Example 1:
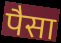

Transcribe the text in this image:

पैसा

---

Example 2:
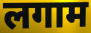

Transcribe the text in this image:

लगाम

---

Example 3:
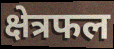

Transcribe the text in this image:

क्षेत्रफल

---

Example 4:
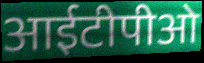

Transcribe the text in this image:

आईटीपीओ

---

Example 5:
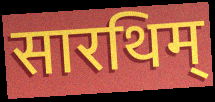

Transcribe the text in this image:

सारथिम्